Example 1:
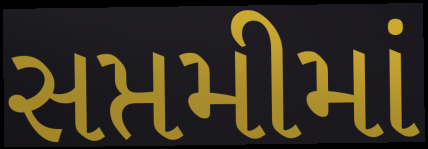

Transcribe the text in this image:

સપ્તમીમાં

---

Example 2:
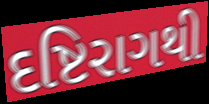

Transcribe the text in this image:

દષ્ટિરાગથી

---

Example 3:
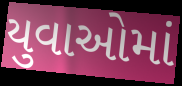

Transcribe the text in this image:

યુવાઓમાં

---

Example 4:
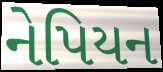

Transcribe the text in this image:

નેપિયન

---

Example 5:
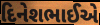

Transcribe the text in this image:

દિનેશભાઈએ